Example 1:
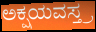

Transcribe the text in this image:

ಅಕ್ಷಯವಸ್ತ್ರ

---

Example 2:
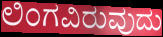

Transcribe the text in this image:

ಲಿಂಗವಿರುವುದು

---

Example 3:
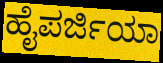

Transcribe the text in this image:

ಹೈಪರ್ಜಿಯಾ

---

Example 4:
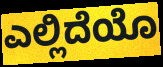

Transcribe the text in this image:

ಎಲ್ಲಿದೆಯೊ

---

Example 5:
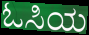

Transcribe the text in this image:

ಓಸಿಯ